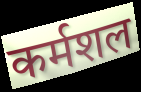
कर्मशल